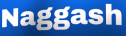
Naggash